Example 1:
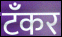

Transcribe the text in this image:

टॅँकर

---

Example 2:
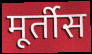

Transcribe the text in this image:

मूर्तीस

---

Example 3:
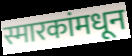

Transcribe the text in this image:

स्मारकांमधून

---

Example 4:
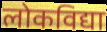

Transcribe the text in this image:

लोकविद्या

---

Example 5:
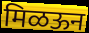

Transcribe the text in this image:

मिळऊन